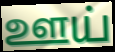
ஊய்